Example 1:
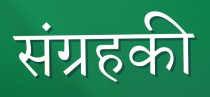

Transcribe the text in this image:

संग्रहकी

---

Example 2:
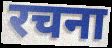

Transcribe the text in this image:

रचना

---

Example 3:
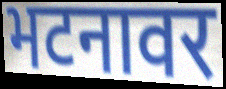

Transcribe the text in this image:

भटनावर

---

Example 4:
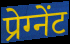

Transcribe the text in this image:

प्रेग्नेंट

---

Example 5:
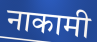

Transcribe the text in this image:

नाकामी